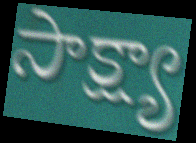
సాక్ష్యా